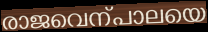
രാജവെന്പാലയെ